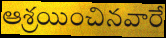
ఆశ్రయించినవారే